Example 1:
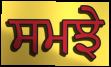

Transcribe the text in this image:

ਸਮਝੇ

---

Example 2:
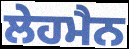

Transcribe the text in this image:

ਲੇਹਮੈਨ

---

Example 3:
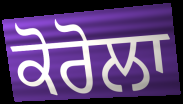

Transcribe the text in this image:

ਕੋਰੋਲਾ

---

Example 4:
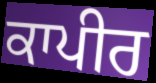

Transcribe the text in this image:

ਕਾਪੀਰ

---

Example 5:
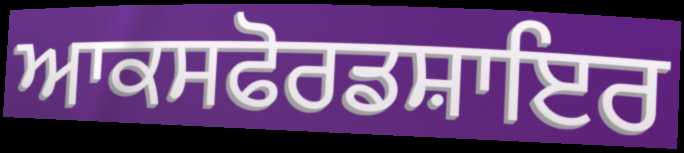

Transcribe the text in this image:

ਆਕਸਫੋਰਡਸ਼ਾਇਰ